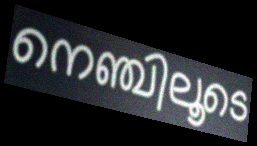
നെഞ്ചിലൂടെ